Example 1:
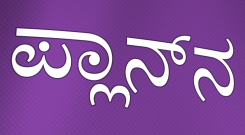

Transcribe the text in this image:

ಪ್ಲಾನ್‌ನ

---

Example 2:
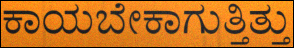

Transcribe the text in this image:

ಕಾಯಬೇಕಾಗುತ್ತಿತ್ತು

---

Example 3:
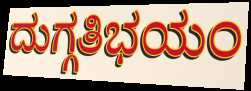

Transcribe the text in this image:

ದುಗ್ಗತಿಭಯಂ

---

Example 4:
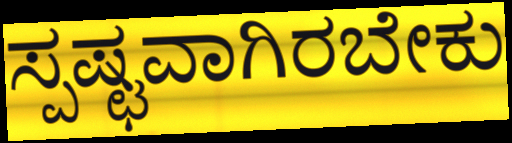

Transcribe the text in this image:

ಸ್ಪಷ್ಟವಾಗಿರಬೇಕು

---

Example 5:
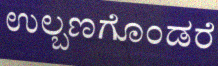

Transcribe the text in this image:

ಉಲ್ಬಣಗೊಂಡರೆ